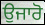
ਉਜਾਰੋ